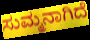
ಸುಮ್ಮನಾಗಿದೆ